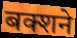
बक्शने